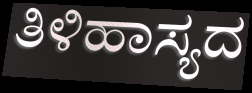
ತಿಳಿಹಾಸ್ಯದ